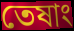
তেষাং